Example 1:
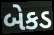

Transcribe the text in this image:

બેકડ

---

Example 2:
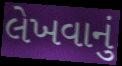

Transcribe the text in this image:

લેખવાનું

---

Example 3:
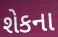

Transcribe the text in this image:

શેકના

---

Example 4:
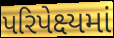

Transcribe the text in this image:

પરિપેક્ષ્યમાં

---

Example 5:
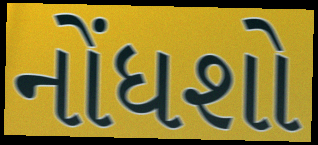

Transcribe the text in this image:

નોંધશો